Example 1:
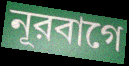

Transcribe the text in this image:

নূরবাগে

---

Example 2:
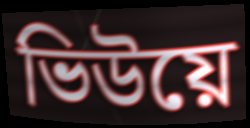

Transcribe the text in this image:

ভিউয়ে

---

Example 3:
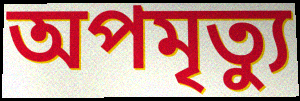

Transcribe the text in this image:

অপমৃত্যু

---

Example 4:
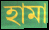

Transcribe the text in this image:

হামা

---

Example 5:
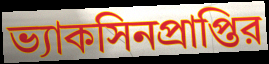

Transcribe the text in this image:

ভ্যাকসিনপ্রাপ্তির